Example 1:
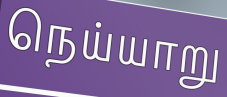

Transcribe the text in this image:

நெய்யாறு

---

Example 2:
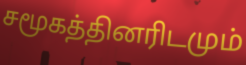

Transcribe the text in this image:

சமூகத்தினரிடமும்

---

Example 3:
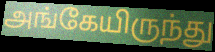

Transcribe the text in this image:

அங்கேயிருந்து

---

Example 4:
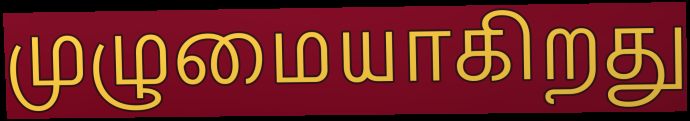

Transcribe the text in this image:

முழுமையாகிறது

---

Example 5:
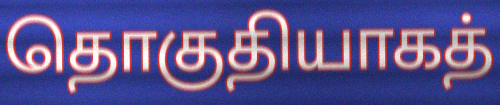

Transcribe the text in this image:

தொகுதியாகத்